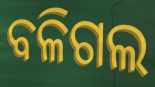
ବଳିଗଲ